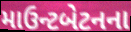
માઉન્ટબેટનના